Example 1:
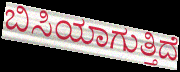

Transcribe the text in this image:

ಬಿಸಿಯಾಗುತ್ತಿದೆ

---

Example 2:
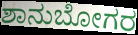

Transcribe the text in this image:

ಶಾನುಬೋಗರ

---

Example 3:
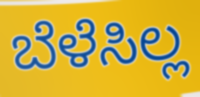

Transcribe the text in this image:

ಬೆಳೆಸಿಲ್ಲ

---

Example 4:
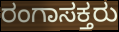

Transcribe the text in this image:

ರಂಗಾಸಕ್ತರು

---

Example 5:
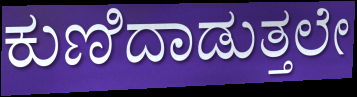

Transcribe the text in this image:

ಕುಣಿದಾಡುತ್ತಲೇ